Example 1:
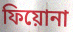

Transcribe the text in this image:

ফিয়োনা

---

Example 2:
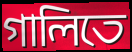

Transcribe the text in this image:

গালিতে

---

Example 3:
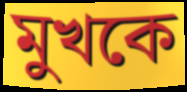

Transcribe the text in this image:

মুখকে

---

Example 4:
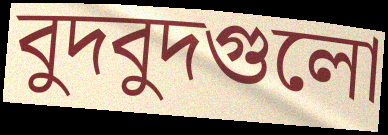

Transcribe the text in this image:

বুদবুদগুলো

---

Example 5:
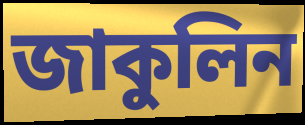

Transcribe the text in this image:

জাকুলিন